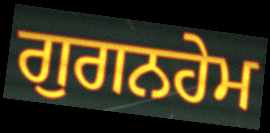
ਗੁਗਨਹੇਮ